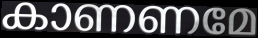
കാണണമേ